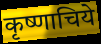
कृष्णाचिये